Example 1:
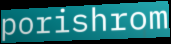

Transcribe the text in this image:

porishrom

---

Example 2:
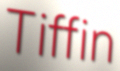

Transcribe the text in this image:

Tiffin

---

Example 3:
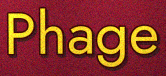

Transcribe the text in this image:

Phage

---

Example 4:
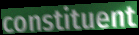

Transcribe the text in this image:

constituent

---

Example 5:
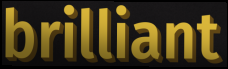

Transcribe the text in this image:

brilliant